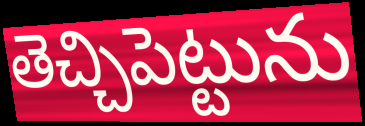
తెచ్చిపెట్టును